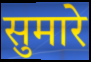
सुमारे